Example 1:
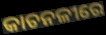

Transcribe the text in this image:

କାଚନଳୀରେ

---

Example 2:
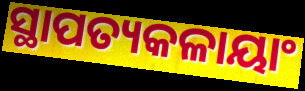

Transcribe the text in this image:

ସ୍ଥାପତ୍ୟକଳାୟାଂ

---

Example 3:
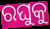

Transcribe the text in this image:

ରଘୁକୁ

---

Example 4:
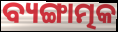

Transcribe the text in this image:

ବ୍ୟଙ୍ଗାତ୍ମକ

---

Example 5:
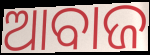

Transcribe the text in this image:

ଆବାଜ